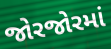
જોરજોરમાં